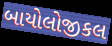
બાયોલોજીકલ